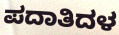
ಪದಾತಿದಳ